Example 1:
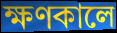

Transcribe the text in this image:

ক্ষণকালে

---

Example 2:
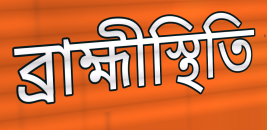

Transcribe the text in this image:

ব্রাহ্মীস্থিতি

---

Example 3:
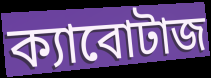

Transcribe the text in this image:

ক্যাবোটাজ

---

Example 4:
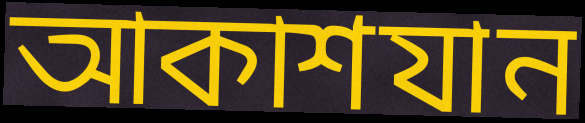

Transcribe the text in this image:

আকাশযান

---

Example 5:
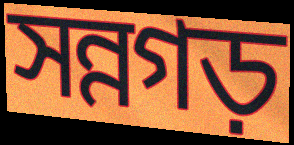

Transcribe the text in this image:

সন্নগড়